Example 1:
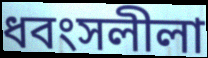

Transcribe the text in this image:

ধবংসলীলা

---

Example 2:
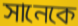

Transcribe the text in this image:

সানেকে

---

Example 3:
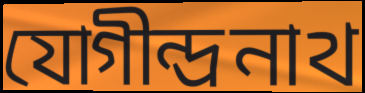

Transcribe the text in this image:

যোগীন্দ্রনাথ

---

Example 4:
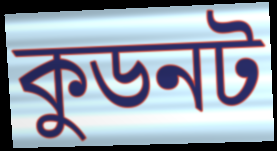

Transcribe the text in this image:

কুডনট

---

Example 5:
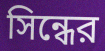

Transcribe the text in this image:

সিন্ধের